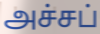
அச்சப்